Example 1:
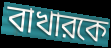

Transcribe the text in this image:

বাখারকে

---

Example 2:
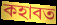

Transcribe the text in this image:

কহাবত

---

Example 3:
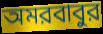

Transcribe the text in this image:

অমরবাবুর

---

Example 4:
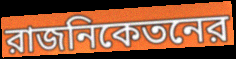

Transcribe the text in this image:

রাজনিকেতনের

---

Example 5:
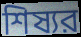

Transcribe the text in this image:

শিষ্যর